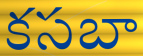
కసబా